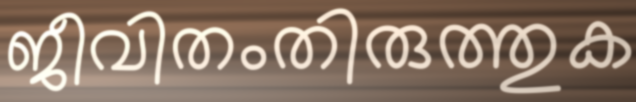
ജീവിതംതിരുത്തുക